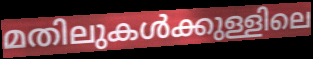
മതിലുകൾക്കുള്ളിലെ